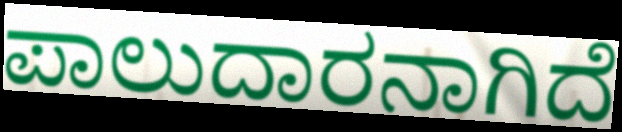
ಪಾಲುದಾರನಾಗಿದೆ